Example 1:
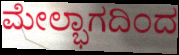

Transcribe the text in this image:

ಮೇಲ್ಭಾಗದಿಂದ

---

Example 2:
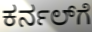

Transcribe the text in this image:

ಕರ್ನಲ್‌ಗೆ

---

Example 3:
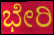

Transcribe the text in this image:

ಭೇರಿ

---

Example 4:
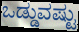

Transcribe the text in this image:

ಒಡ್ಡುವಷ್ಟು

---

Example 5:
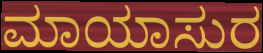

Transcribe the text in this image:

ಮಾಯಾಸುರ